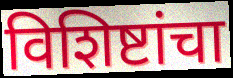
विशिष्टांचा